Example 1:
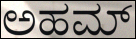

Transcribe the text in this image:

ಅಹಮ್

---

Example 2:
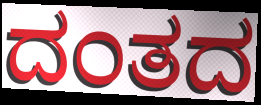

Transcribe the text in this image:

ದಂತದ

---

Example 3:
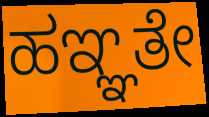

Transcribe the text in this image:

ಹಞ್ಞತೇ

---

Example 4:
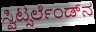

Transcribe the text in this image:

ಸ್ವಿಟ್ಸರ್ಲೆಂಡ್‌ನ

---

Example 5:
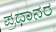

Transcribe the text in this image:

ಪ್ರಧಾನರ